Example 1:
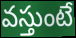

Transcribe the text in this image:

వస్తుంటే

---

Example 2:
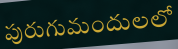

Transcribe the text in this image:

పురుగుమందులలో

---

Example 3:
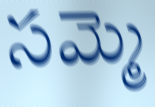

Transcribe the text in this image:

సమ్మె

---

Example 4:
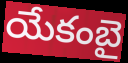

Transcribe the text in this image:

యేకంబై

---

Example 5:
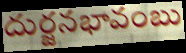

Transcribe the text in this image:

దుర్జనభావంబు